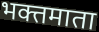
भक्तमाता